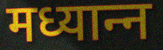
मध्यान्न